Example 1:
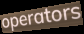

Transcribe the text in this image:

operators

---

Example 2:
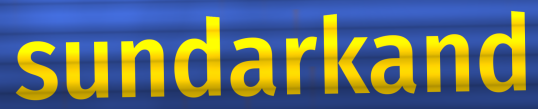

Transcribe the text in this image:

sundarkand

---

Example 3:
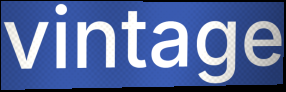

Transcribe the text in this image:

vintage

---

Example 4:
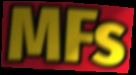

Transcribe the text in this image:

MFs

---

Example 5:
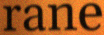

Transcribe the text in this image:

rane